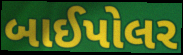
બાઈપોલર